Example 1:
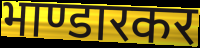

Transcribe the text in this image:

भाण्डारकर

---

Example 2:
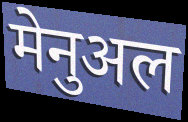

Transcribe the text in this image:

मेनुअल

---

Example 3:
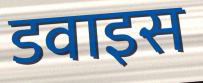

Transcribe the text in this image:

डवाइस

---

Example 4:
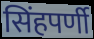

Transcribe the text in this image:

सिंहपर्णी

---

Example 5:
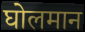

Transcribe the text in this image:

घोलमान